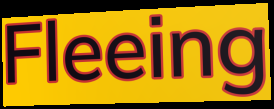
Fleeing